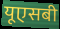
यूएसबी